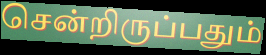
சென்றிருப்பதும்